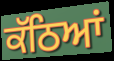
ਕੱਠਿਆਂ